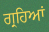
ਗ੍ਰਹਿਆਂ